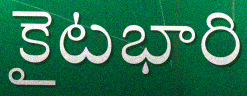
కైటభారి